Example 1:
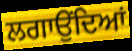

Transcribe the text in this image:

ਲਗਾਉੰਦਿਆਂ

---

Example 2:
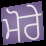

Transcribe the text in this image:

ਮੋਰੇ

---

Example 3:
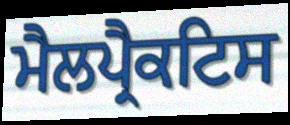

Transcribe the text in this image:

ਮੈਲਪ੍ਰੈਕਟਿਸ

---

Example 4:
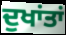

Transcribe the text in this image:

ਦੁਖਾਂਤਾਂ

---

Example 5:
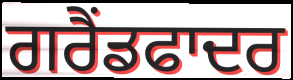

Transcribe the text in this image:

ਗਰੈਂਡਫਾਦਰ